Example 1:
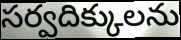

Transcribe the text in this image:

సర్వదిక్కులను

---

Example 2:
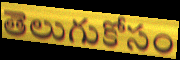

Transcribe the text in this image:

తెలుగుకోసం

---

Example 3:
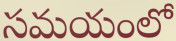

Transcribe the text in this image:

సమయంలో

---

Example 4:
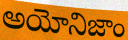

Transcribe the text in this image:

అయోనిజాం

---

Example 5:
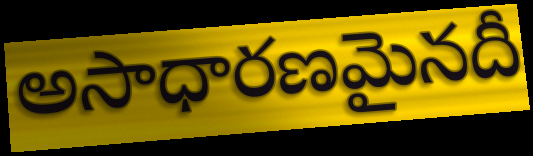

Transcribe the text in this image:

అసాధారణమైనదీ